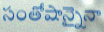
సంతోషాన్నైనా